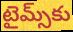
టైమ్స్‌కు